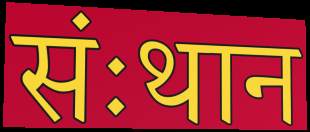
संःथान